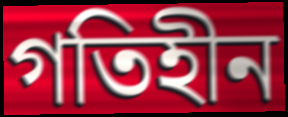
গতিহীন